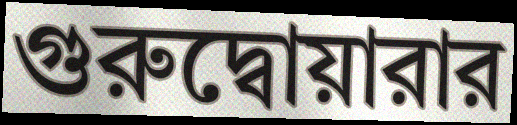
গুরুদ্বোয়ারার